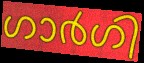
ഗാർഗി